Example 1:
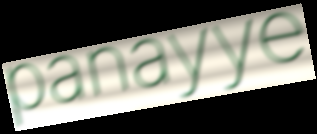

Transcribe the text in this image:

panayye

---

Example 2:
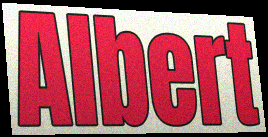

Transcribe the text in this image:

Albert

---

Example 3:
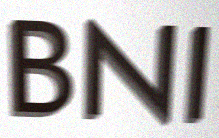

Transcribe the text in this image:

BNI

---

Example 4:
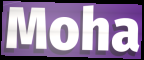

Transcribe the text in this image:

Moha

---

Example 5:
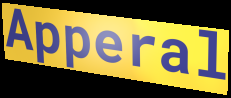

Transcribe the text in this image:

Apperal